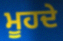
ਮੂਹਦੇ